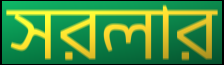
সরলার